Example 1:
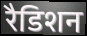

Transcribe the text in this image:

रैडिशन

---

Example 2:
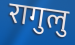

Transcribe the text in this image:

रागुलु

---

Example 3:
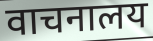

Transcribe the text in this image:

वाचनालय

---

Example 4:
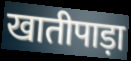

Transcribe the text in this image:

खातीपाड़ा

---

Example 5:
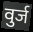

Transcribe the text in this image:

वुर्ज